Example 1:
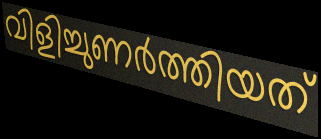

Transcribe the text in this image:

വിളിച്ചുണർത്തിയത്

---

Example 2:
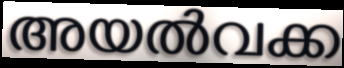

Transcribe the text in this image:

അയൽവക്ക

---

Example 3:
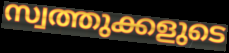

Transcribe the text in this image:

സ്വത്തുക്കളുടെ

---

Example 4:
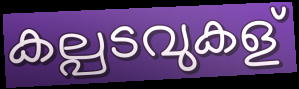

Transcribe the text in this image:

കല്പടവുകള്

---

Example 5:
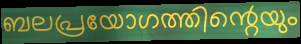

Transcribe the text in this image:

ബലപ്രയോഗത്തിന്റെയും